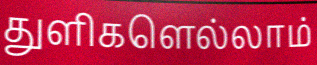
துளிகளெல்லாம்